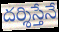
దర్శిస్తేనే